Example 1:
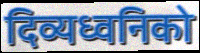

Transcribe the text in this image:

दिव्यध्वनिको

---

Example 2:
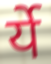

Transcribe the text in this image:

र्ये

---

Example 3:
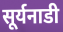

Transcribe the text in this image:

सूर्यनाडी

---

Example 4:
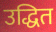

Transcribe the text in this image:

उद्धित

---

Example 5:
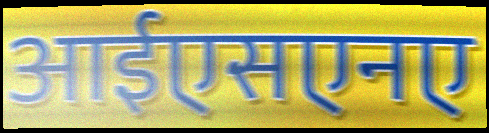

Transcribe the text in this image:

आईएसएनए